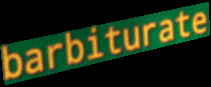
barbiturate